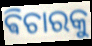
ଵିଚାରକୁ